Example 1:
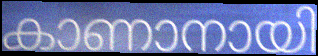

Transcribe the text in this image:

കാണാനായി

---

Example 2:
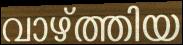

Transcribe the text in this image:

വാഴ്ത്തിയ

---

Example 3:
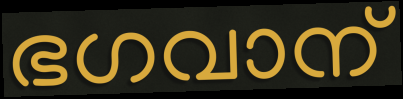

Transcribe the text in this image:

ഭഗവാന്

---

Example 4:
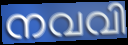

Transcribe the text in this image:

നവവി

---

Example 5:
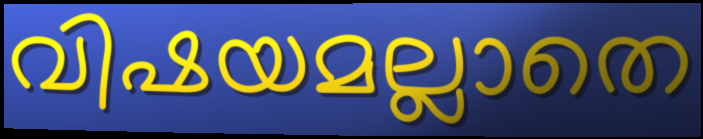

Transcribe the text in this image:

വിഷയമല്ലാതെ